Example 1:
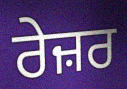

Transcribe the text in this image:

ਰੇਜ਼ਰ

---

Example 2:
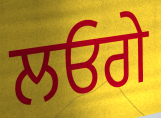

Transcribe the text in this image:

ਲਓਗੇ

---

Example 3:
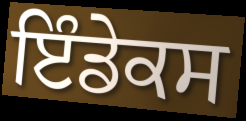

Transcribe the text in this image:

ਇੰਡੇਕਸ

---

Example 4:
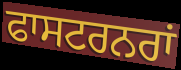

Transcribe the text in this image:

ਫਾਸਟਰਨਰਾਂ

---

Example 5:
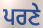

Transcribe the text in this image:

ਪਰਣੇ